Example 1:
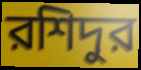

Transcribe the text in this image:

রশিদুর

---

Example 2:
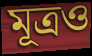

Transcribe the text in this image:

মূত্রও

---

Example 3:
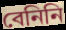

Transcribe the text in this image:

বেনিনি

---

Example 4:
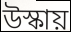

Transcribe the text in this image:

উস্কায়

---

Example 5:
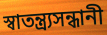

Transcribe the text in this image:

স্বাতন্ত্র্যসন্ধানী